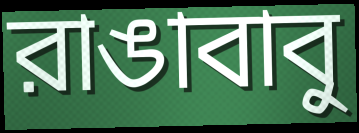
রাঙাবাবু